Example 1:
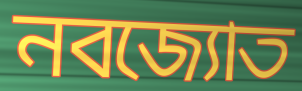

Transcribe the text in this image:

নবজ্যোত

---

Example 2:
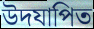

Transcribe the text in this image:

উদযাপিত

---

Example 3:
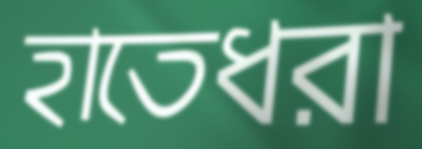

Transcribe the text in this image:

হাতেধরা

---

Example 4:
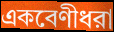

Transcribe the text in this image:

একবেণীধরা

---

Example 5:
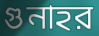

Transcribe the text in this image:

গুনাহর